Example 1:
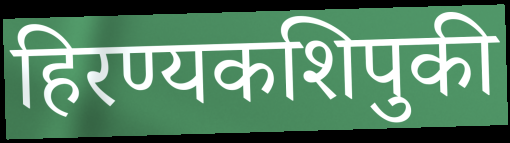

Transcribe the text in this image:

हिरण्यकशिपुकी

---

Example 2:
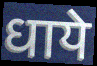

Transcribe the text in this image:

धाये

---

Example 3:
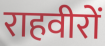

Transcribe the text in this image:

राहवीरों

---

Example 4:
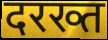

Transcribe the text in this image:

दरख्त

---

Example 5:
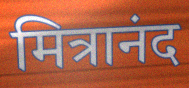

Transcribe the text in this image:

मित्रानंद